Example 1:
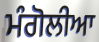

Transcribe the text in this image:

ਮੰਗੋਲੀਆ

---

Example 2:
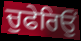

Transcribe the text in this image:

ਚੁਫੇਰਿਓੁਂ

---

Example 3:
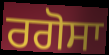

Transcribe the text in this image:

ਰਗੋਸਾ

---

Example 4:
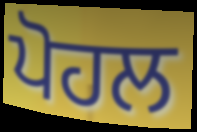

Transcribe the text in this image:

ਪੋਹਲ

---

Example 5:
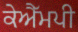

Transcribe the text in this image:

ਕੇਐੱਮਪੀ